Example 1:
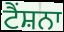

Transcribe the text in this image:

ਟੈਂਸ਼ਨਾ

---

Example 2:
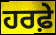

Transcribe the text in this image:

ਹਰਫ਼ੇ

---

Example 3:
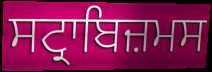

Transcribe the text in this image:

ਸਟ੍ਰਾਬਿਜ਼ਮਸ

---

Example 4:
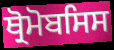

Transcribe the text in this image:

ਥ੍ਰੋਮੋਬਸਿਸ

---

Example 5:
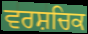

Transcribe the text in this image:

ਵਰਸ਼ਚਿਕ